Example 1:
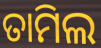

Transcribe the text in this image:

ତାମିଲ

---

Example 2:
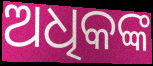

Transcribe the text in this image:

ଅଧିକଙ୍କ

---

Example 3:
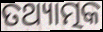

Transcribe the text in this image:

ତଥ୍ୟାତ୍ମକ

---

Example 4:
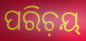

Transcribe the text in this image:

ପରିଚ଼ୟ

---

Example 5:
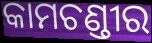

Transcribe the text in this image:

କାମଚଣ୍ଡୀର